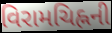
વિરામચિહ્નની